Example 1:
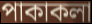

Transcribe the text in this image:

পাকাকলা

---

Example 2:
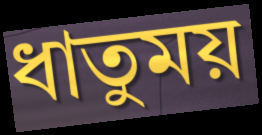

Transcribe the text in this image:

ধাতুময়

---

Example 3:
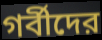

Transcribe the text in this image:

গর্বীদের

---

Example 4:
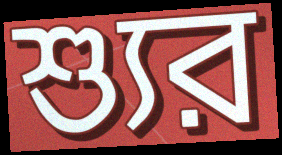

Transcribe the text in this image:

শ্যুর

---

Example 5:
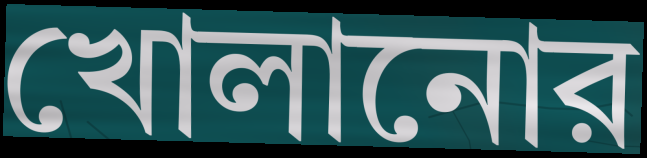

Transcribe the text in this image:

খোলানোর